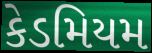
કેડમિયમ